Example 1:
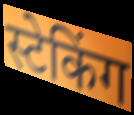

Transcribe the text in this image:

स्टेकिंग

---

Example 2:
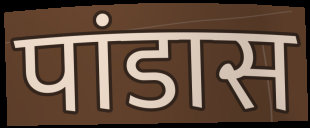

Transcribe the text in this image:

पांडास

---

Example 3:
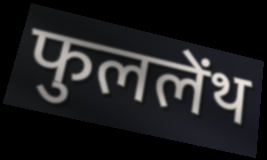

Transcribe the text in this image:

फुललेंथ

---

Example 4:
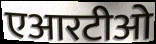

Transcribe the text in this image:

एआरटीओ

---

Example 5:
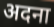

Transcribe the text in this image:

अदना